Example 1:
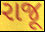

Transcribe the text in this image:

રાજૂ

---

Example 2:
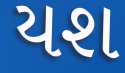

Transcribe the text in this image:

યશ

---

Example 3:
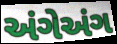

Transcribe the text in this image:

અંગેઅંગ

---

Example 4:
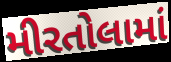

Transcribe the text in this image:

મીરતોલામાં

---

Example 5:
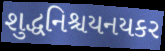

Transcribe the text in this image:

શુદ્ધનિશ્ચયનયકર